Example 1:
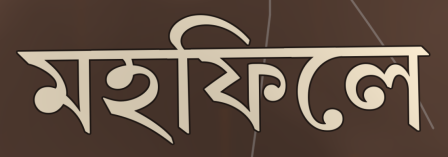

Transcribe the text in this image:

মহফিলে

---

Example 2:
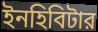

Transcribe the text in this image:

ইনহিবিটার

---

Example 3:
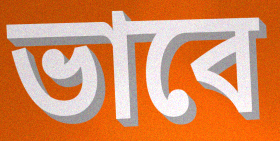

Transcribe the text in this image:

ভাবে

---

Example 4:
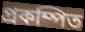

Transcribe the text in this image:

প্রকম্পিত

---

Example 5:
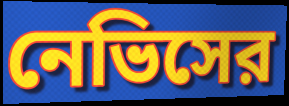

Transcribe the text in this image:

নেভিসের